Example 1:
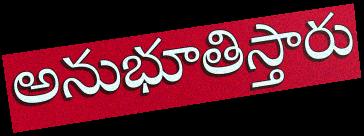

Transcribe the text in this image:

అనుభూతిస్తారు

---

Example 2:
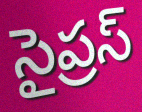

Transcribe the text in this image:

సైప్రస్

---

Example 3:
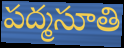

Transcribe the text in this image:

పద్మసూతి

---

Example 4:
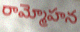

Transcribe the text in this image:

రామ్మోహన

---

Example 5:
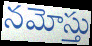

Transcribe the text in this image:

నమోస్తు